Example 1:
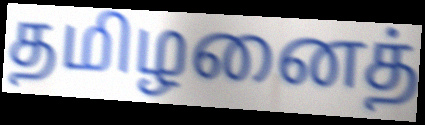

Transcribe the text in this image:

தமிழனைத்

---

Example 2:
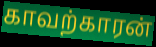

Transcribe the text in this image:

காவற்காரன்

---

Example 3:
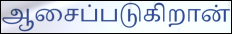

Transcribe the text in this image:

ஆசைப்படுகிறான்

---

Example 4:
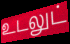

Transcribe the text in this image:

உடலுட்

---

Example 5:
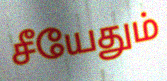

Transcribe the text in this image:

சீயேதும்